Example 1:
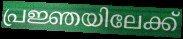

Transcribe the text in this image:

പ്രജ്ഞയിലേക്ക്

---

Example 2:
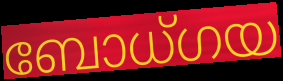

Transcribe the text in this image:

ബോധ്ഗയ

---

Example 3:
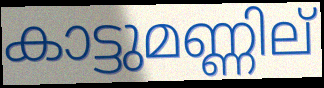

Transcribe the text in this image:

കാട്ടുമണ്ണില്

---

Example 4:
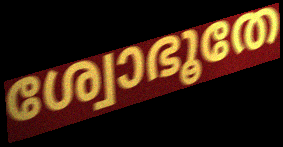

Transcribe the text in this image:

ശ്വോഭൂതേ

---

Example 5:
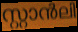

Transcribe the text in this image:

സ്റ്റാൻലി